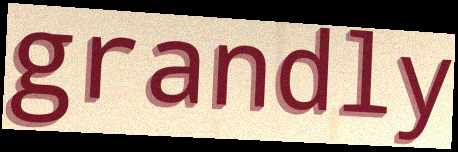
grandly